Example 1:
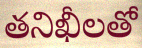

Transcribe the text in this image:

తనిఖీలతో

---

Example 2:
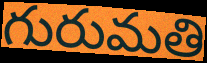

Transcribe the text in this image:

గురుమతి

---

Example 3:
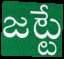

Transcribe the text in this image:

జట్టే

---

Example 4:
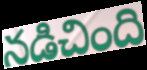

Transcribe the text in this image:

నడిచింది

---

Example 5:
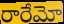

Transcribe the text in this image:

రారేమో